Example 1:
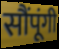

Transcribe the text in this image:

सौंपूंगी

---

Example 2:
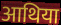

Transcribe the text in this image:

आथिया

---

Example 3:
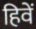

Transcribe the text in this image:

हिवें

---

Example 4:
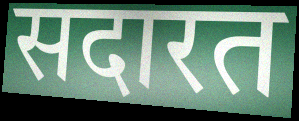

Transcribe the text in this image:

सदारत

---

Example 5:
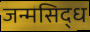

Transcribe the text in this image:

जन्‍मसिद्ध